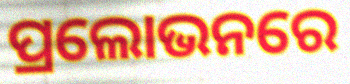
ପ୍ରଲୋଭନରେ